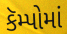
કૅમ્પોમાં